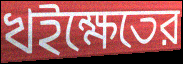
খইক্ষেতের